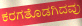
ಕರಗತೊಡಗಿದವು